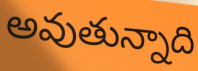
అవుతున్నాది